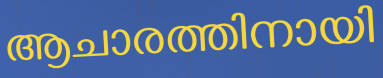
ആചാരത്തിനായി